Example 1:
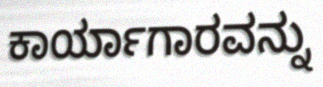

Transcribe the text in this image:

ಕಾರ್ಯಾಗಾರವನ್ನು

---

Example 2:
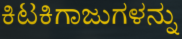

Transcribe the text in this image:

ಕಿಟಕಿಗಾಜುಗಳನ್ನು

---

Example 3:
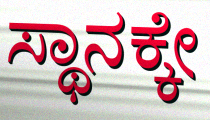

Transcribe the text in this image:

ಸ್ಥಾನಕ್ಕೇ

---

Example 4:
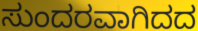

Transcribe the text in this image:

ಸುಂದರವಾಗಿದದ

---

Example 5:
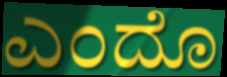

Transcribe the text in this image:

ಎಂದೊ